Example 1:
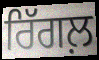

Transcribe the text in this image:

ਰਿੱਗਲ਼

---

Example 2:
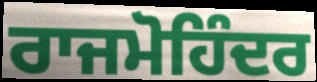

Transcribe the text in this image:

ਰਾਜਮੋਹਿੰਦਰ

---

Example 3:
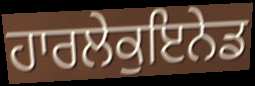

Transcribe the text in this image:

ਹਾਰਲੇਕੁਇਨੇਡ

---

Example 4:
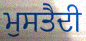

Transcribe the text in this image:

ਮੁਸਤੈਦੀ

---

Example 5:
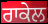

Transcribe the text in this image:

ਰਾਕੇਲ